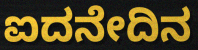
ಐದನೇದಿನ